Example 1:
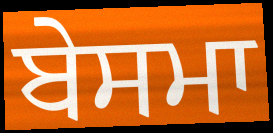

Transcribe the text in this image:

ਬੇਸਮਾ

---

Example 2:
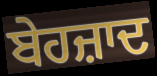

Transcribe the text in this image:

ਬੇਹਜ਼ਾਦ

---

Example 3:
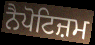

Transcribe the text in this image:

ਨੈਪੋਟਿਜ਼ਮ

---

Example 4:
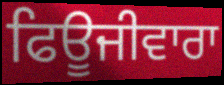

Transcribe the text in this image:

ਫਿਊਜੀਵਾਰਾ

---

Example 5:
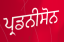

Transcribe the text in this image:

ਪ੍ਰਡਨੀਸੋਨ